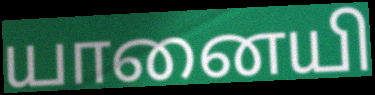
யானையி